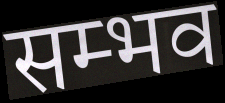
सम्भव